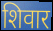
शिवार